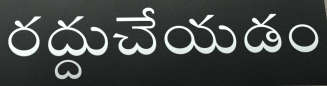
రద్దుచేయడం